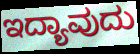
ಇದ್ಯಾವುದು